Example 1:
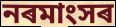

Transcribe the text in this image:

নৰমাংসৰ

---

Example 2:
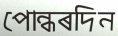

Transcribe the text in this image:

পোন্ধৰদিন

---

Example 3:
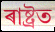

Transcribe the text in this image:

ৰাষ্ট্ৰত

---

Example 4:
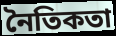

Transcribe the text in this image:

নৈতিকতা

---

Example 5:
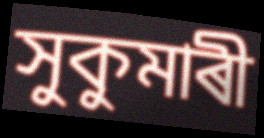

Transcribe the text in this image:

সুকুমাৰী